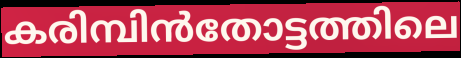
കരിമ്പിൻതോട്ടത്തിലെ